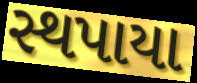
સ્થપાયા